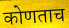
कोणताच